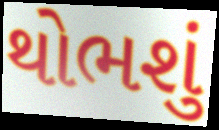
થોભશું